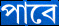
পাবে